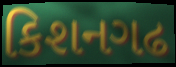
કિશનગઢ